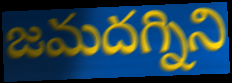
జమదగ్నిని